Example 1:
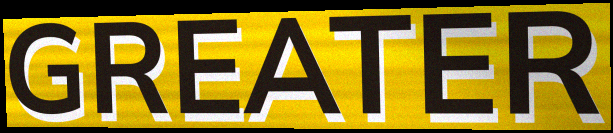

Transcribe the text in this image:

GREATER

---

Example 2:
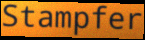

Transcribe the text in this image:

Stampfer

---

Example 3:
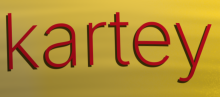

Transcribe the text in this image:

kartey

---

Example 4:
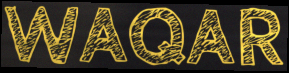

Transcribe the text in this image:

WAQAR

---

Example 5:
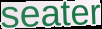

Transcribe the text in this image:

seater